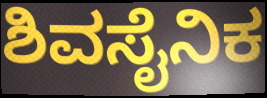
ಶಿವಸೈನಿಕ